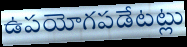
ఉపయోగపడేటట్లు